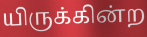
யிருக்கின்ற